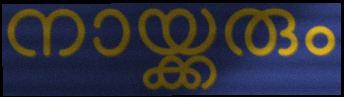
നായ്ക്കരും